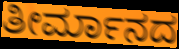
ತೀರ್ಮಾನದ